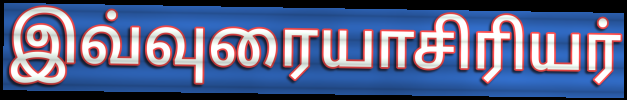
இவ்வுரையாசிரியர்